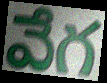
వేగ